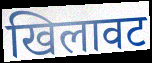
खिलावट